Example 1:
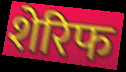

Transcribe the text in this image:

शेरिफ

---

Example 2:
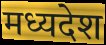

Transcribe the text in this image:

मध्यदेश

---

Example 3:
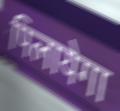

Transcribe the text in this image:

पिलायेगा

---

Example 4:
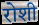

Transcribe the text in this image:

रोशी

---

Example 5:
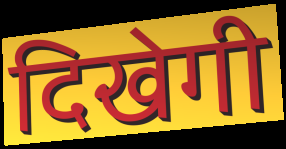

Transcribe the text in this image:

दिखेगी